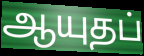
ஆயுதப்